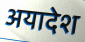
अयादेश